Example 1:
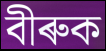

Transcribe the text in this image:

বীৰুক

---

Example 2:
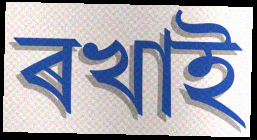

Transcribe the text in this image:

ৰখাই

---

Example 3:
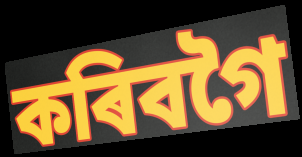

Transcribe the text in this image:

কৰিবগৈ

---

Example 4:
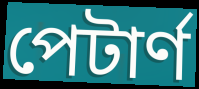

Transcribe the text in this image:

পেটাৰ্ণ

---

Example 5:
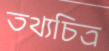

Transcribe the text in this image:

তথ্যচিত্ৰ